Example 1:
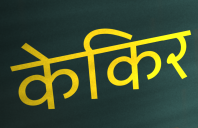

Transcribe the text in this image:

केकिर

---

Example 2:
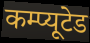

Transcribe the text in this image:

कम्प्यूटेड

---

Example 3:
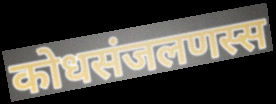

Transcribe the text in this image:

कोधसंजलणस्स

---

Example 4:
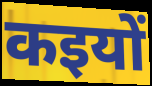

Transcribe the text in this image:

कइयों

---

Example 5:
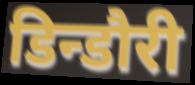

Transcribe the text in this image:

डिन्डौरी